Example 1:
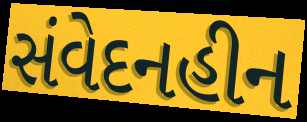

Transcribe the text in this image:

સંવેદનહીન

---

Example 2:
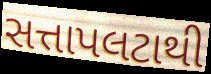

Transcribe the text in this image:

સત્તાપલટાથી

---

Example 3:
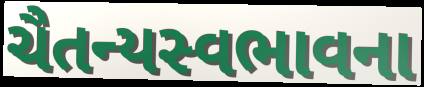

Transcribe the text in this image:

ચૈતન્યસ્વભાવના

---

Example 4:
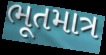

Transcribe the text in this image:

ભૂતમાત્ર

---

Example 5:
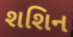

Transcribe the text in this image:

શશિન